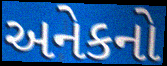
અનેકનો